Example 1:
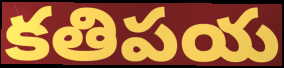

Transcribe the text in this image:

కతిపయ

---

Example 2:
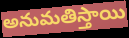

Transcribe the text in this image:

అనుమతిస్తాయి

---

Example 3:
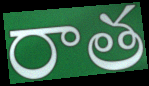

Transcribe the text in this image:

రాత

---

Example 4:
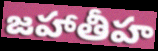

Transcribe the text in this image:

జహాతీహ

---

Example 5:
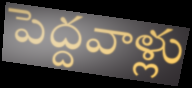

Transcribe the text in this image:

పెద్దవాళ్లు